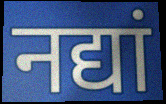
नद्यां